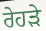
ਰੇਹੜੇ